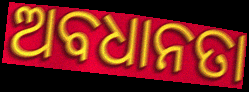
ଅବଧାନତା